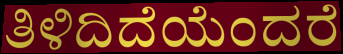
ತಿಳಿದಿದೆಯೆಂದರೆ